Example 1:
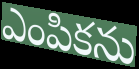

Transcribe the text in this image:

ఎంపికను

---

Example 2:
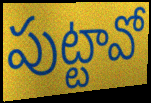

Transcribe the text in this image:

పుట్టావో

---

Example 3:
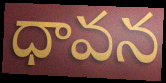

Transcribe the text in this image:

ధావన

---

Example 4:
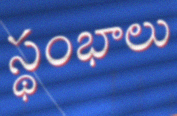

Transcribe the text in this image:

స్థంభాలు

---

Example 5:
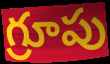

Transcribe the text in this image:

గ్రూపు